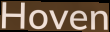
Hoven